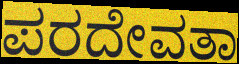
ಪರದೇವತಾ